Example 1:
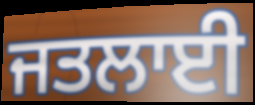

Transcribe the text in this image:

ਜਤਲਾਈ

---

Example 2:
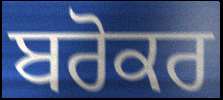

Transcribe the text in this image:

ਬਰੋਕਰ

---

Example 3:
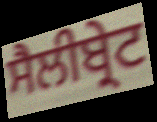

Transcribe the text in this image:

ਸੈਲੀਬ੍ਰੇਟ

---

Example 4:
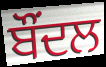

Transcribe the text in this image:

ਬੌਂਦਲ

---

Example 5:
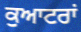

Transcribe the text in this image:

ਕੁਆਟਰਾਂ